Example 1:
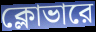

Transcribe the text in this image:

ক্লোভারে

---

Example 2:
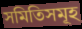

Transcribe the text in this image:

সমিতিসমূহ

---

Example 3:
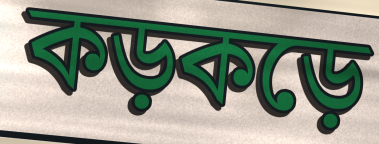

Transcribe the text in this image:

কড়কড়ে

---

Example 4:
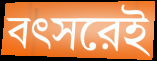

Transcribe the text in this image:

বৎসরেই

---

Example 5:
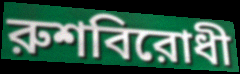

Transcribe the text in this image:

রুশবিরোধী